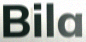
Bila